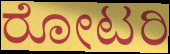
ರೋಟರಿ